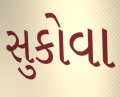
સુકોવા